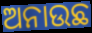
ଅନାଉଛ